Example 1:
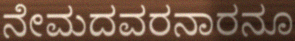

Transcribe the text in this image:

ನೇಮದವರನಾರನೂ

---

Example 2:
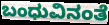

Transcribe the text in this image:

ಬಂಧುವಿನಂತೆ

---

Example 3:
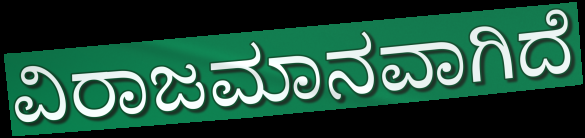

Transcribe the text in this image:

ವಿರಾಜಮಾನವಾಗಿದೆ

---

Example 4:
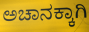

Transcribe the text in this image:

ಅಚಾನಕ್ಕಾಗಿ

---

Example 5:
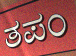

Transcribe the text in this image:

ತಪಂ